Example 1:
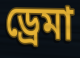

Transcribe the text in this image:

ড্রেমা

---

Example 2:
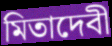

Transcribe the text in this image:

মিতাদেবী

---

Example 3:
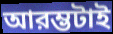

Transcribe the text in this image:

আরম্ভটাই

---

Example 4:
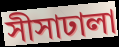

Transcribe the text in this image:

সীসাঢালা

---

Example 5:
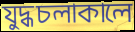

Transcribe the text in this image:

যুদ্ধচলাকালে